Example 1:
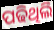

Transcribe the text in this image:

ପଢିଥିଲି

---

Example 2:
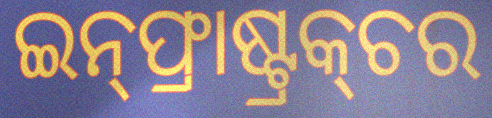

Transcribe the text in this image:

ଇନ୍‌ଫ୍ରାଷ୍ଟ୍ରକ୍‌ଚର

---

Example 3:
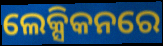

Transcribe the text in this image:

ଲେକ୍ସିକନରେ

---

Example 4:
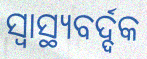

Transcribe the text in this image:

ସ୍ଵାସ୍ଥ୍ୟବର୍ଦ୍ଦକ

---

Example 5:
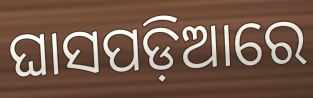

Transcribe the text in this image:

ଘାସପଡ଼ିଆରେ